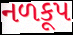
નળકૂપ